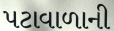
પટાવાળાની